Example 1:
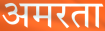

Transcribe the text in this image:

अमरता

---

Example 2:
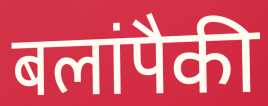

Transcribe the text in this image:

बलांपैकी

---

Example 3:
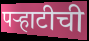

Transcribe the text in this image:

पऱ्हाटीची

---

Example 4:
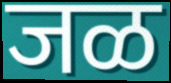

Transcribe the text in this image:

जळ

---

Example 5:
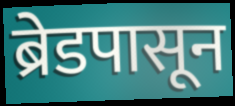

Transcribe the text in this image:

ब्रेडपासून